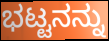
ಭಟ್ಟನನ್ನು